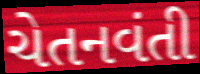
ચેતનવંતી